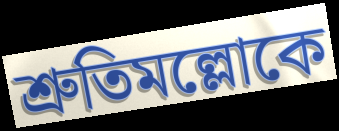
শ্রুতিমল্লোকে